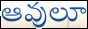
ఆవులూ